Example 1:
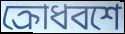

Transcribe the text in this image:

ক্রোধবশে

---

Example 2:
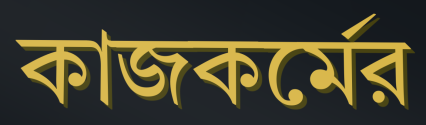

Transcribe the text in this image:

কাজকর্মের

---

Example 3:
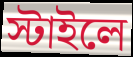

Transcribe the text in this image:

স্টাইলে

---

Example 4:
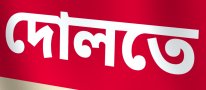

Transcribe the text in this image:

দোলতে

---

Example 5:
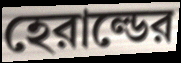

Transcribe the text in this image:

হেরাল্ডের